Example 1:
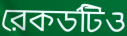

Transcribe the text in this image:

রেকর্ডটিও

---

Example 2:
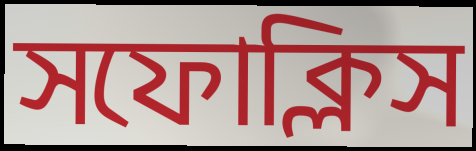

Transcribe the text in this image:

সফোক্লিস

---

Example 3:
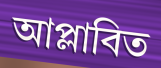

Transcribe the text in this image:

আপ্লাবিত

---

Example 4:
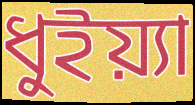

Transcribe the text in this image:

ধুইয়্যা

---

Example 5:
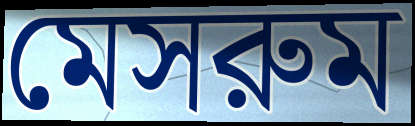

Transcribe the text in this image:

মেসরুম